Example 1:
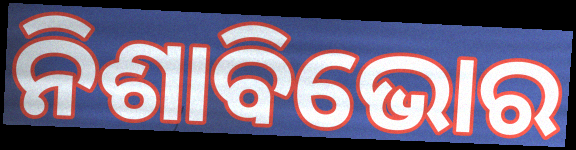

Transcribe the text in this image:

ନିଶାବିଭୋର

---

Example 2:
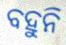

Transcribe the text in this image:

ବହୁନି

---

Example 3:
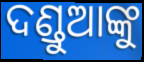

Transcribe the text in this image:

ଦଣ୍ଡୁଆଙ୍କୁ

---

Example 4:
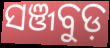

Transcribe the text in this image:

ସଞ୍ଜବୁଡ଼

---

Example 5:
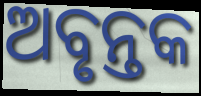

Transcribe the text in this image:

ଅବୃନ୍ତକ